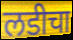
लडीचा